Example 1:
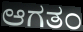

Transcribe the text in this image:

ಆಗತಂ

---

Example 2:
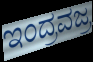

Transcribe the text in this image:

ಇಂದ್ರವಜ್ರ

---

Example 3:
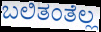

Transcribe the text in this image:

ಬಲಿತಂತೆಲ್ಲ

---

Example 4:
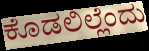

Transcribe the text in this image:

ಕೊಡಲಿಲ್ಲೆಂದು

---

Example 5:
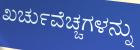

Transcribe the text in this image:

ಖರ್ಚುವೆಚ್ಚಗಳನ್ನು